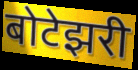
बोटेझरी